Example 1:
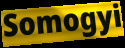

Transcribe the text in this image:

Somogyi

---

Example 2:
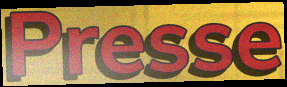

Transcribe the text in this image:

Presse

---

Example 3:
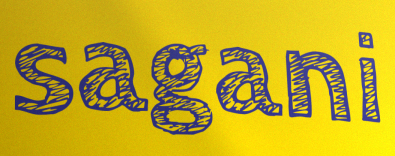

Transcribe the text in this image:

sagani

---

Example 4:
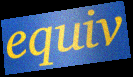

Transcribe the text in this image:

equiv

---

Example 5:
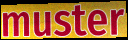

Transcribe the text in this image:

muster